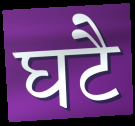
घटै